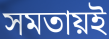
সমতায়ই